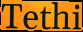
Tethi